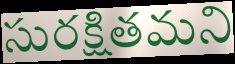
సురక్షితమని